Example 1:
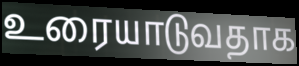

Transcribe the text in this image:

உரையாடுவதாக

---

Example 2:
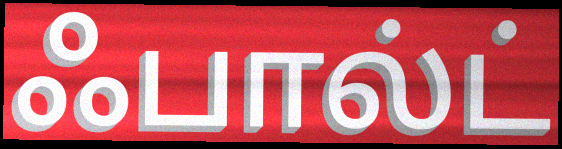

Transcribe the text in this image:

ஃபால்ட்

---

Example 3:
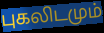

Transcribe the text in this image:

புகலிடமும்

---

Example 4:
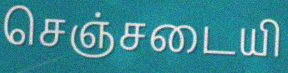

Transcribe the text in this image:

செஞ்சடையி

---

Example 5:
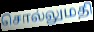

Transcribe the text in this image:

சொல்லுமதி